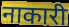
नाकारी